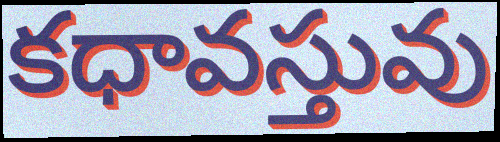
కధావస్తువు